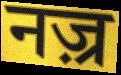
नज़्र